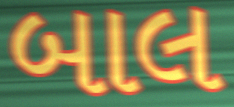
બાલ